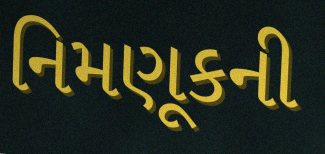
નિમણૂકની